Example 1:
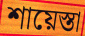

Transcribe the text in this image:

শায়েস্তা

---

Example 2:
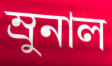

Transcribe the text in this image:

ম্রুনাল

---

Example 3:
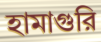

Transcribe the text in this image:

হামাগুরি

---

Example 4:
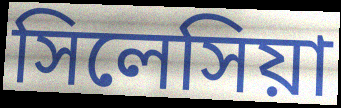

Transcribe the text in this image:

সিলেসিয়া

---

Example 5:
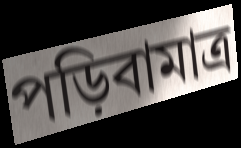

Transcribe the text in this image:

পড়িবামাত্র